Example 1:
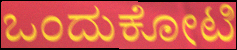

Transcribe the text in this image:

ಒಂದುಕೋಟಿ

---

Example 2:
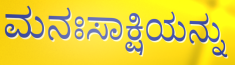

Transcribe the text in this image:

ಮನಃಸಾಕ್ಷಿಯನ್ನು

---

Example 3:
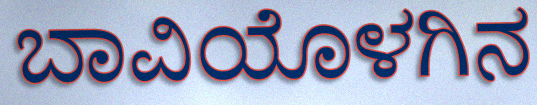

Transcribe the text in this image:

ಬಾವಿಯೊಳಗಿನ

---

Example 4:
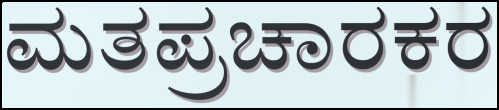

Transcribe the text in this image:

ಮತಪ್ರಚಾರಕರ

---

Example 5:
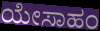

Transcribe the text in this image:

ಯೇಸಾಹಂ